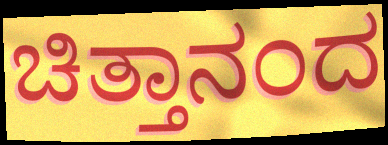
ಚಿತ್ತಾನಂದ